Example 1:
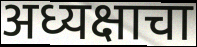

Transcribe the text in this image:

अध्यक्षाचा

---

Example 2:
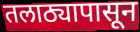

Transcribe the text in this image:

तलाठ्यापासून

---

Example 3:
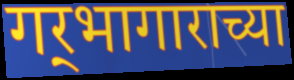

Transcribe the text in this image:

गर्भागाराच्या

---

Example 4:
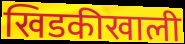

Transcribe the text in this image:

खिडकीखाली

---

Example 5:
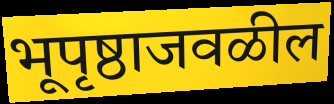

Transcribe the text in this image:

भूपृष्ठाजवळील